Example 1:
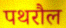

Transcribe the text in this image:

पथरौल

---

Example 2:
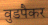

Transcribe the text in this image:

वुडपैकर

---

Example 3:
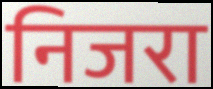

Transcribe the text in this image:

निजरा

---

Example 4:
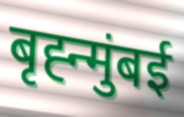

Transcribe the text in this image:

बृह्न्मुंबई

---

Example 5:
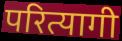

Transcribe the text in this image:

परित्यागी